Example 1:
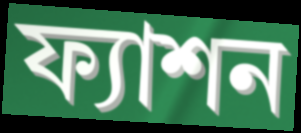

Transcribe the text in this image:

ফ্যাশন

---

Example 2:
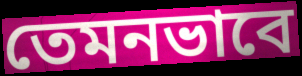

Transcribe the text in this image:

তেমনভাবে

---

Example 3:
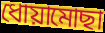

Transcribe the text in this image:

ধোয়ামোছা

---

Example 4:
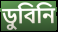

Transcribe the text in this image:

ডুবিনি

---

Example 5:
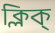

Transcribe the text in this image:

ক্লিক্